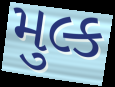
મુલ્ક